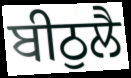
ਬੀਠੁਲੈ